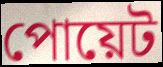
পোয়েট